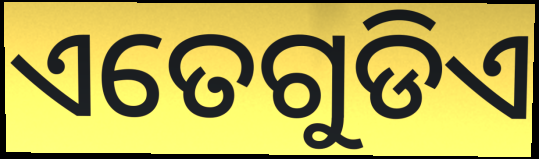
ଏତେଗୁଡିଏ